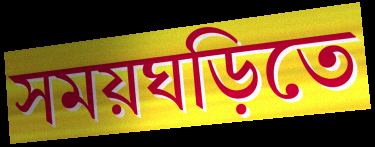
সময়ঘড়িতে